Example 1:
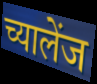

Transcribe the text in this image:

च्यालेंज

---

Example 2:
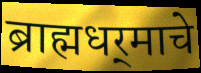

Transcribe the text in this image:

ब्राह्मधर्माचे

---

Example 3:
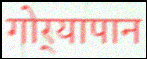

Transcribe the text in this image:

गोर्यापान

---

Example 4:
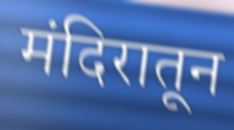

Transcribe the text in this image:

मंदिरातून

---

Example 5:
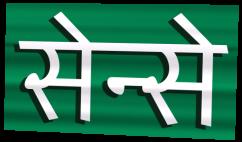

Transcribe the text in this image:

सेन्से